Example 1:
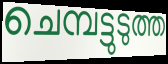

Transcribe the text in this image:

ചെമ്പട്ടുടുത്ത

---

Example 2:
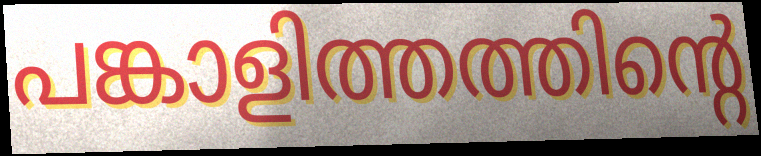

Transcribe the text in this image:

പങ്കാളിത്തത്തിന്റെ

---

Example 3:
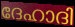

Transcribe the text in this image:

ദേഹാദി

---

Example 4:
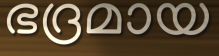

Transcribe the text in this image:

ഭദ്രമായ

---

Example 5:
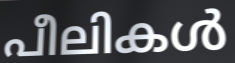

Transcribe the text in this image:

പീലികൾ